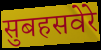
सुबहसवेरे